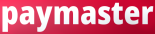
paymaster